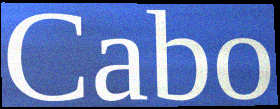
Cabo